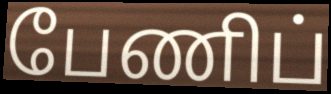
பேணிப்